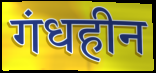
गंधहीन